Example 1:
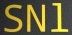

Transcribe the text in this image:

SNl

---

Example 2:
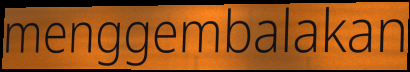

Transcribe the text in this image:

menggembalakan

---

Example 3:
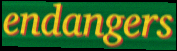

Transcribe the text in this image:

endangers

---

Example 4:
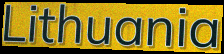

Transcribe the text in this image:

Lithuania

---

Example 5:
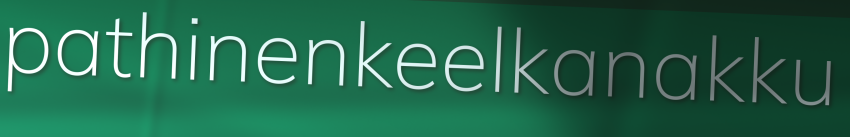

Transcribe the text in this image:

pathinenkeelkanakku